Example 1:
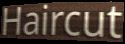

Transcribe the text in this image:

Haircut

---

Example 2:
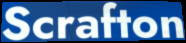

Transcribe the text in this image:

Scrafton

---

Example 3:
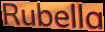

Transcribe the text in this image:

Rubella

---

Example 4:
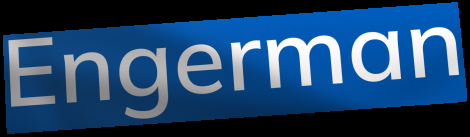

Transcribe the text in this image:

Engerman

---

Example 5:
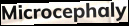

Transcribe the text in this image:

Microcephaly